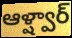
ఆళ్ష్వార్